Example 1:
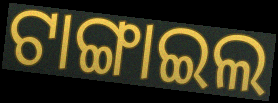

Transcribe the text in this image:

ଟାଙ୍ଗାଇଲ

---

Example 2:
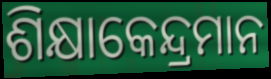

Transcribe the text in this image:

ଶିକ୍ଷାକେନ୍ଦ୍ରମାନ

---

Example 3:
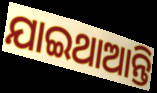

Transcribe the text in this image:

ଯାଇଥାଆନ୍ତି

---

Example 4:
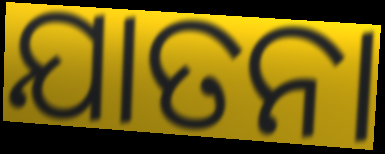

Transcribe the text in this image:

ଯାତନା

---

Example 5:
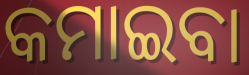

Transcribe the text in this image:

କମାଇବା